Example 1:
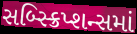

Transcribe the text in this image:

સબ્સ્ક્રિપ્શન્સમાં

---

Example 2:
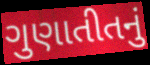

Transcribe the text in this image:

ગુણાતીતનું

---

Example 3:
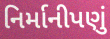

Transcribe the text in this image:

નિર્માનીપણું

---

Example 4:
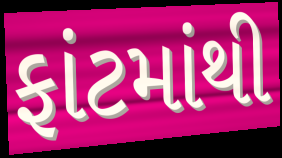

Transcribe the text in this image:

ફાંટમાંથી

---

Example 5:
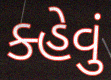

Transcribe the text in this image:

ક્હેવું